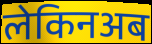
लेकिनअब